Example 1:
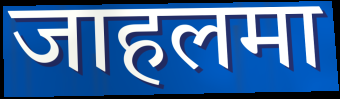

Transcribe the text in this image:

जाहलमा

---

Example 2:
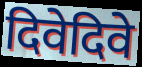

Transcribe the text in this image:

दिवेदिवे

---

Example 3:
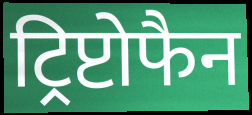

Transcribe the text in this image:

ट्रिप्टोफैन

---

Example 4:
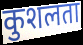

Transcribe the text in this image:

कुशलता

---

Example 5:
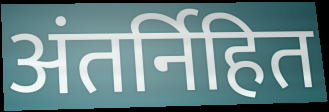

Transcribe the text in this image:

अंतर्निहित